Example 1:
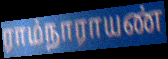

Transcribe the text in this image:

ராம்நாராயண்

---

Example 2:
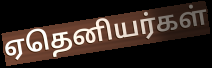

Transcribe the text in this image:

ஏதெனியர்கள்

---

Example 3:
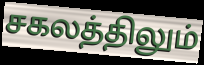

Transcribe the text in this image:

சகலத்திலும்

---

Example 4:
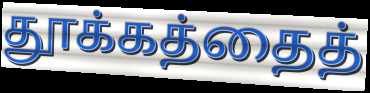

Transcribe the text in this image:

தூக்கத்தைத்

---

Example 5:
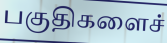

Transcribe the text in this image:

பகுதிகளைச்